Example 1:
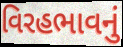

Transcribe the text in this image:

વિરહભાવનું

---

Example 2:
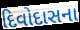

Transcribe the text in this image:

દિવોદાસના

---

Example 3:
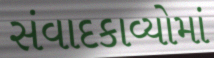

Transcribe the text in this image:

સંવાદકાવ્યોમાં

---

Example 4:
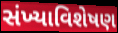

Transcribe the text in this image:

સંખ્યાવિશેષણ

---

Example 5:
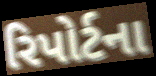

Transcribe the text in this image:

રિપોર્ટના